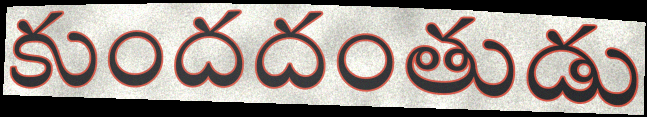
కుందదంతుడు